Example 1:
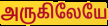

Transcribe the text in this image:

அருகிலேயே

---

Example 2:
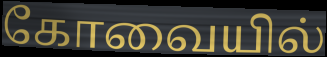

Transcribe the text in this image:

கோவையில்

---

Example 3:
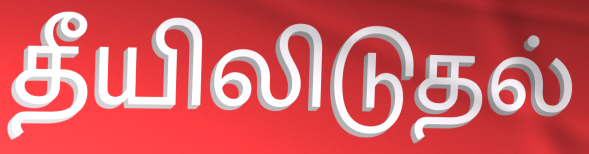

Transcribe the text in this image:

தீயிலிடுதல்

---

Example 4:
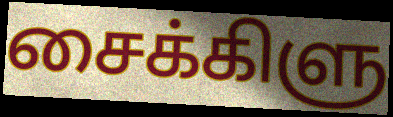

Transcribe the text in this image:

சைக்கிளு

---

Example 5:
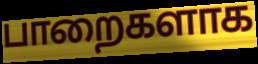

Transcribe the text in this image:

பாறைகளாக